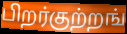
பிறர்குற்றங்